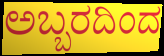
ಅಬ್ಬರದಿಂದ